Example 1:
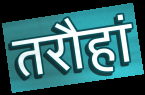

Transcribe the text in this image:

तरौहां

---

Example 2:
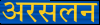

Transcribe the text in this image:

अरसलन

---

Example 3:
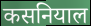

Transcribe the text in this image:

कसनियाल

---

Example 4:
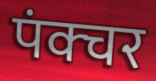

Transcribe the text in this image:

पंक्‍चर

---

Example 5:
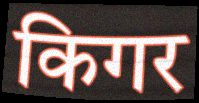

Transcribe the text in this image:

किगर